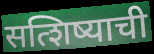
सत्शिष्याची